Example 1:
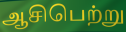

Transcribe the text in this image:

ஆசிபெற்று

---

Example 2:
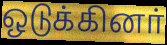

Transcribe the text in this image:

ஒடுக்கினர்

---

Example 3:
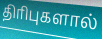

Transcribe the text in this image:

திரிபுகளால்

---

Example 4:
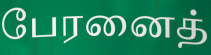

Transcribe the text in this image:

பேரனைத்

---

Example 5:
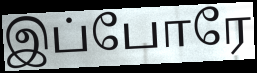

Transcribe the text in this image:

இப்போரே